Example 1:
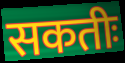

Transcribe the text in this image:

सकतीः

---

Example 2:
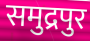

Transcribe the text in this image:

समुद्रपुर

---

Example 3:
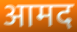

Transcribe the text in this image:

आमद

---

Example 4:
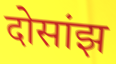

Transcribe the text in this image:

दोसांझ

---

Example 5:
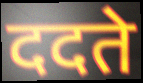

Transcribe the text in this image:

ददते